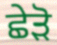
ਛੇੜੋ